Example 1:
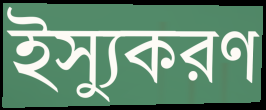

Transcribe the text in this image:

ইস্যুকরণ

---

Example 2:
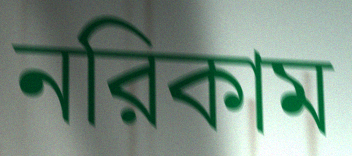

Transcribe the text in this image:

নরিকাম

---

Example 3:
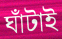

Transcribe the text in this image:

ঘাঁটাই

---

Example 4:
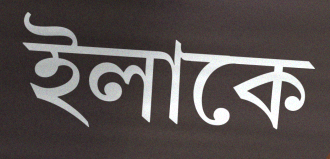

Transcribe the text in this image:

ইলাকে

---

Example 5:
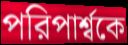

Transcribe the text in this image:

পরিপার্শ্বকে